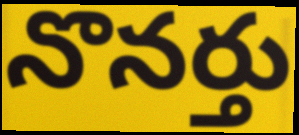
నొనర్తు